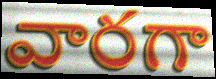
వారగా